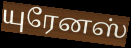
யுரேனஸ்